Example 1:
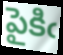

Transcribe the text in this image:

పైకిఁ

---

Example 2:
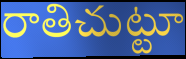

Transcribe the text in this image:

రాతిచుట్టూ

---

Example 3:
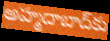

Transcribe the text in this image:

అహ్మదాబాద్‌కు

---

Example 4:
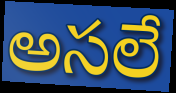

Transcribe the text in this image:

అసలే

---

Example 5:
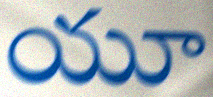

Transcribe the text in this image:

యూ